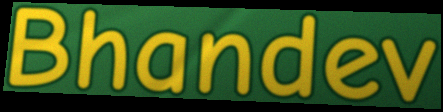
Bhandev